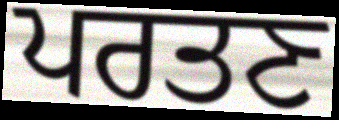
ਪਰਤਣ